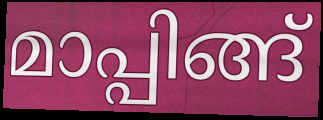
മാപ്പിങ്ങ്